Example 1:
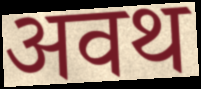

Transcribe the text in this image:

अवथ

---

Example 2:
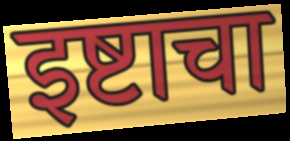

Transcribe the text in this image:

इष्टाचा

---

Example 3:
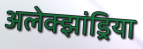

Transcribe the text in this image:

अलेक्झांड्रिया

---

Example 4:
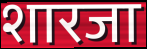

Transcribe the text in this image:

शारजा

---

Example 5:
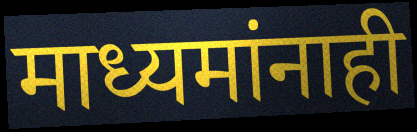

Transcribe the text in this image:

माध्यमांनाही